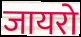
जायरो